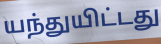
யந்துயிட்டது